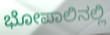
ಭೋಪಾಲಿನಲ್ಲಿ